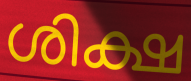
ശിക്ഷ